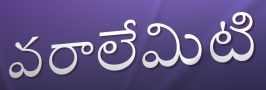
వరాలేమిటి